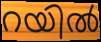
റയിൽ